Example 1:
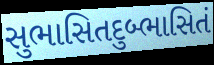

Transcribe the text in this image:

સુભાસિતદુબ્ભાસિતં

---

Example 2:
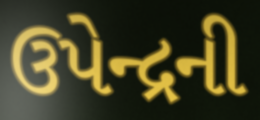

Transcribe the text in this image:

ઉપેન્દ્રની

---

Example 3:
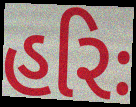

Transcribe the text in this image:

હરિઃ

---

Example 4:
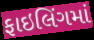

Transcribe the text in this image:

ફાઇલિંગમાં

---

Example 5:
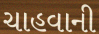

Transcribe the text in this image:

ચાહવાની